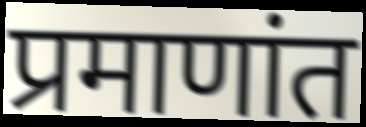
प्रमाणांत